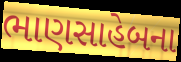
ભાણસાહેબના